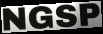
NGSP